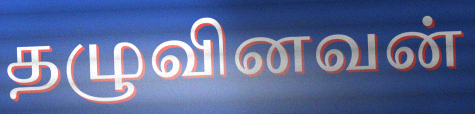
தழுவினவன்